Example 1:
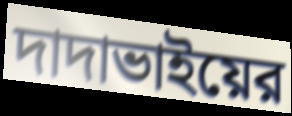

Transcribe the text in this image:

দাদাভাইয়ের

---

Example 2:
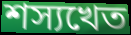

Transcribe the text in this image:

শস্যখেত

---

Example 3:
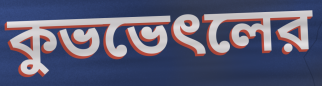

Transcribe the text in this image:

কুভভেৎলের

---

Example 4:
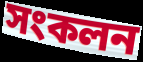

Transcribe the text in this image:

সংকলন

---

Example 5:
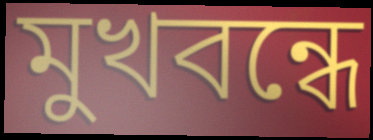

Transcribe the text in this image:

মুখবন্ধে